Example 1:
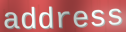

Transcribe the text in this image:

address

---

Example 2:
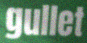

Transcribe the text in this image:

gullet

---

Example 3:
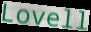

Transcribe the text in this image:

Lovell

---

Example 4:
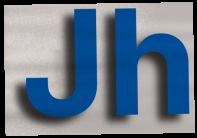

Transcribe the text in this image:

Jh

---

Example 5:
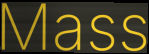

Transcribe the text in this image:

Mass